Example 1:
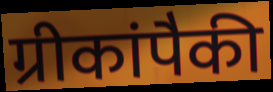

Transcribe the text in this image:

ग्रीकांपैकी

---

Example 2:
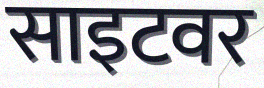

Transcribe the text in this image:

साइटवर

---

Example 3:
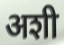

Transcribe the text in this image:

अशी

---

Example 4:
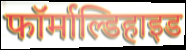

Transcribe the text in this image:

फॉर्माल्डिहाइड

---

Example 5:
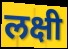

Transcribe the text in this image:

लक्षी